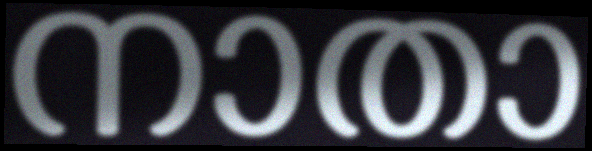
നാതാ